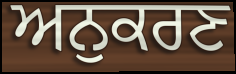
ਅਨੁਕਰਣ